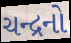
ચન્દ્રનો